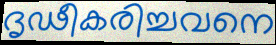
ദൃഢീകരിച്ചവനെ